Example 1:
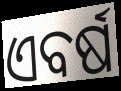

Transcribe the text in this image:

ଏବର୍ଷ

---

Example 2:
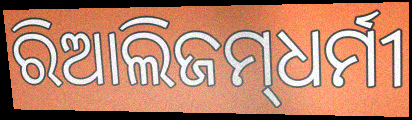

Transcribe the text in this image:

ରିଆଲିଜମ୍‌ଧର୍ମୀ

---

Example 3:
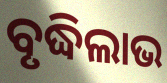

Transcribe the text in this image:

ବୃଦ୍ଧିଲାଭ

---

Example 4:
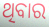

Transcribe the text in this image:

ଥିବାର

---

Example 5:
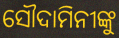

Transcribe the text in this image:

ସୌଦାମିନୀଙ୍କୁ